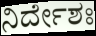
ನಿರ್ದೇಶಃ